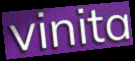
vinita